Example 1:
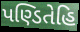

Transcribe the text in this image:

પણ્ડિતેહિ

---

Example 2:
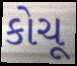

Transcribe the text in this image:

કોચૂ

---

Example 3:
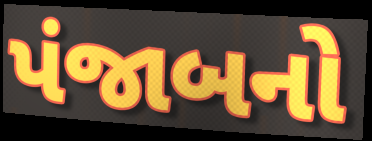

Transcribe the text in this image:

પંજાબનો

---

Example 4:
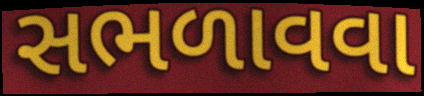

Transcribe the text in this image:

સભળાવવા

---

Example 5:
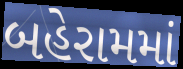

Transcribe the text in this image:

બહેરામમાં